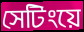
সেটিংয়ে